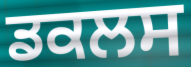
ਡਕਲਸ